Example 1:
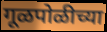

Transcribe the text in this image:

गूळपोळीच्या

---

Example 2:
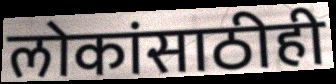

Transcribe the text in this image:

लोकांसाठीही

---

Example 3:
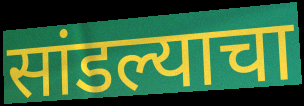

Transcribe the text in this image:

सांडल्याचा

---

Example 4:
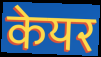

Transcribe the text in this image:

केयर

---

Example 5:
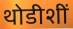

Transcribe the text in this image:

थोडीशीं